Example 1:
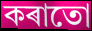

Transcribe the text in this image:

কৰাতো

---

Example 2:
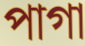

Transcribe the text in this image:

পাগা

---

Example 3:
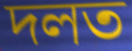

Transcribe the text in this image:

দলত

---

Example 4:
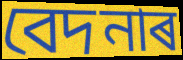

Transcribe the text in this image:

বেদনাৰ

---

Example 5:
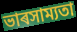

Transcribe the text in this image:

ভাৰসাম্যতা